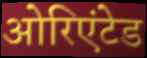
ओरिएंटेड